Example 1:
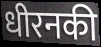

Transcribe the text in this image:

धीरनकी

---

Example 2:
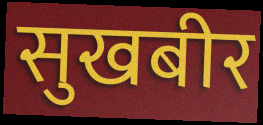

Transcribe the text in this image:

सुखबीर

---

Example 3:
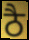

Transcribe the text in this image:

ठै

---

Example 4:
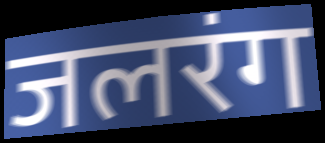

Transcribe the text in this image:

जलरंग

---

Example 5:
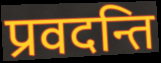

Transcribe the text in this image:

प्रवदन्ति